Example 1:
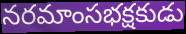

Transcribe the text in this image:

నరమాంసభక్షకుడు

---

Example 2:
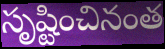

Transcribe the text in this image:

సృష్టించినంత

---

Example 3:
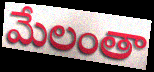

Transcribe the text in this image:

మేలంతా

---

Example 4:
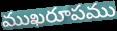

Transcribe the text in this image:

ముఖరూపము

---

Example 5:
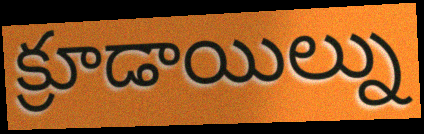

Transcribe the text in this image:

క్రూడాయిల్ను